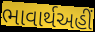
ભાવાર્થઅહીં